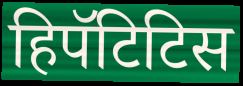
हिपॅटिटिस